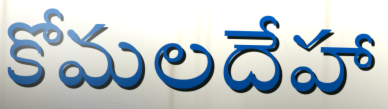
కోమలదేహా